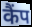
कैंप